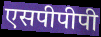
एसपीपीपी